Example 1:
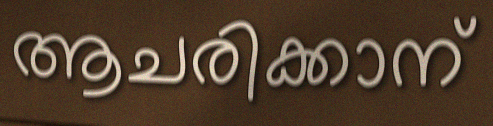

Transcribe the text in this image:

ആചരിക്കാന്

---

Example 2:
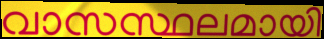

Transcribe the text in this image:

വാസസ്ഥലമായി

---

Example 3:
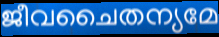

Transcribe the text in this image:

ജീവചൈതന്യമേ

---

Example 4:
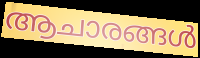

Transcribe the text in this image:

ആചാരങ്ങൾ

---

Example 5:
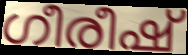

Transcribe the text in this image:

ഗീരീഷ്